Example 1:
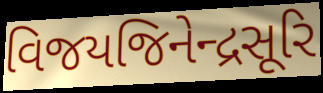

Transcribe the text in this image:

વિજયજિનેન્દ્રસૂરિ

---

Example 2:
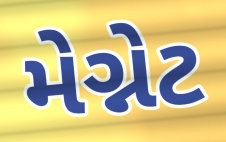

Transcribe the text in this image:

મેગ્નેટ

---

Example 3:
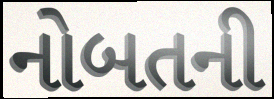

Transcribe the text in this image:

નોબતની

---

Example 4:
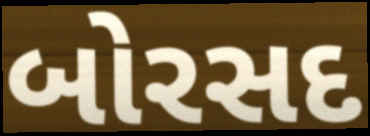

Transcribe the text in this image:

બોરસદ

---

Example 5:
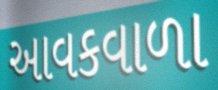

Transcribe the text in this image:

આવકવાળા